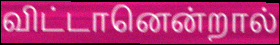
விட்டானென்றால்